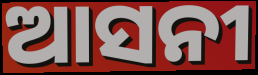
ଆସନୀ